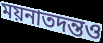
ময়নাতদন্তও